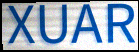
XUAR